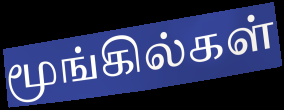
மூங்கில்கள்